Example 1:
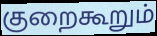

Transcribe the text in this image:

குறைகூறும்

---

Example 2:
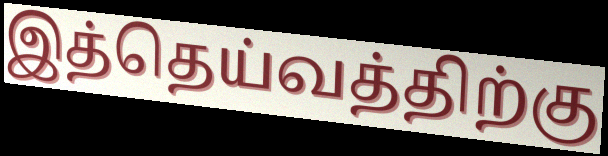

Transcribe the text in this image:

இத்தெய்வத்திற்கு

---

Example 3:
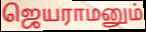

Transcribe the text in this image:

ஜெயராமனும்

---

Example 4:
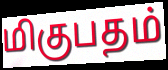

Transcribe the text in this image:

மிகுபதம்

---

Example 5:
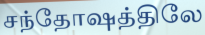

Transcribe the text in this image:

சந்தோஷத்திலே